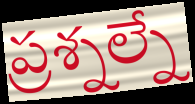
ప్రశ్నల్నే